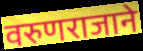
वरुणराजाने